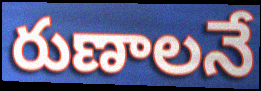
రుణాలనే